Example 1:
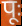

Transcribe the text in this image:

पूः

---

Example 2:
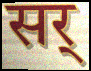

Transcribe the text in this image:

सर्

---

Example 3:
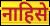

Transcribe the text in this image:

नाहिसे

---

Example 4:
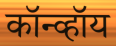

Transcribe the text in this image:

कॉन्व्हॉय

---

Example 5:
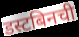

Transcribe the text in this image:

डस्टबिनची